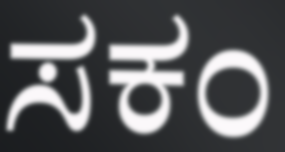
ಸಕಂ